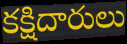
కక్షిదారులు